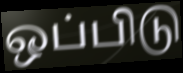
ஒப்பிடு